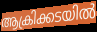
ആക്രിക്കടയിൽ